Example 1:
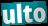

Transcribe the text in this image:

ulto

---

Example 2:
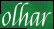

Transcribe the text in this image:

olhar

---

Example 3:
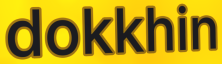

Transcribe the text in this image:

dokkhin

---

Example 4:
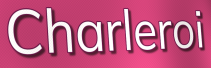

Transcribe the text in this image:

Charleroi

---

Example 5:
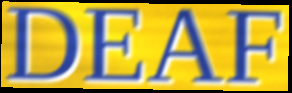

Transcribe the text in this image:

DEAF